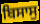
ਬਿਸਾਸੁ